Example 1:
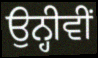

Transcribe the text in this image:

ਉਨ੍ਹੀਵੀਂ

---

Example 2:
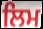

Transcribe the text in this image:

ਲਿਮ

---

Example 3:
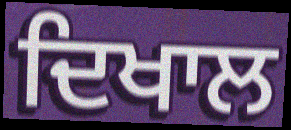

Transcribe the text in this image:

ਦਿਖਾਲ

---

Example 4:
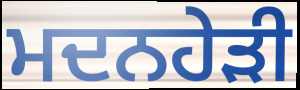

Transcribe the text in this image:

ਮਦਨਹੇੜੀ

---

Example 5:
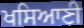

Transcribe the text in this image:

ਖਸਿਆਣੀ